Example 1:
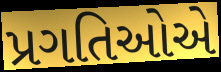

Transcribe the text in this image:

પ્રગતિઓએ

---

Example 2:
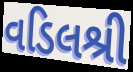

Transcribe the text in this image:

વડિલશ્રી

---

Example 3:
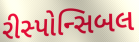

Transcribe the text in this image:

રીસ્પોન્સિબલ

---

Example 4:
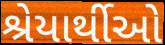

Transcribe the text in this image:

શ્રેયાર્થીઓ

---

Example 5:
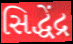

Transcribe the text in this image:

સિદ્ધેંદ્ર